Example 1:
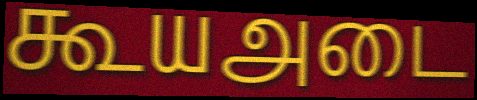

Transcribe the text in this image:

கூயஅடை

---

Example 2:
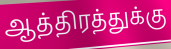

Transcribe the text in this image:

ஆத்திரத்துக்கு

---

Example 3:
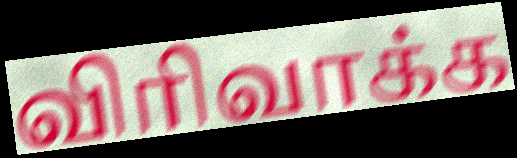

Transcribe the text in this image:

விரிவாக்க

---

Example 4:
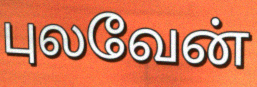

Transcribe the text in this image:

புலவேன்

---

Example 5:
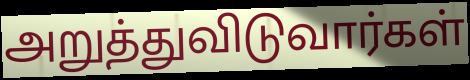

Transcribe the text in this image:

அறுத்துவிடுவார்கள்